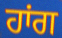
ਹਾਂਗ